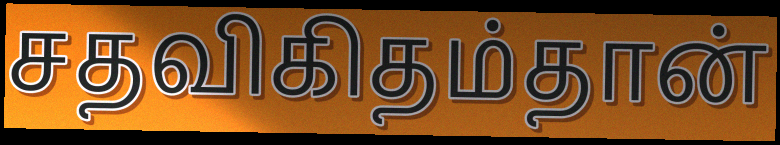
சதவிகிதம்தான்